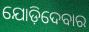
ଯୋଡ଼ିଦେବାର